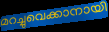
മറച്ചുവെക്കാനായി